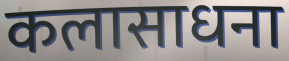
कलासाधना